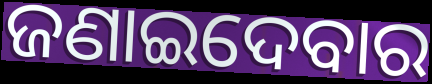
ଜଣାଇଦେବାର